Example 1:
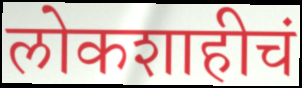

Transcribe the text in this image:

लोकशाहीचं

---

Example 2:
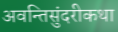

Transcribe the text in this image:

अवन्तिसुंदरीकथा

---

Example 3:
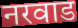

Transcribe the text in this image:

नरवाड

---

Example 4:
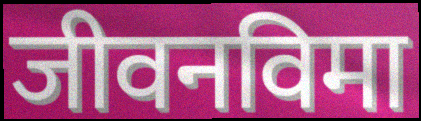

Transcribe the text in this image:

जीवनविमा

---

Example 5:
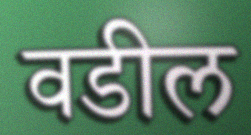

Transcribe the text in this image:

वडील